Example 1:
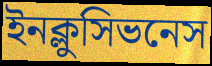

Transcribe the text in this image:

ইনক্লুসিভনেস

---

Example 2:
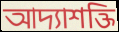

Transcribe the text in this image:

আদ্যাশক্তি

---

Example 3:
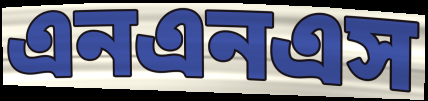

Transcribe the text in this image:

এনএনএস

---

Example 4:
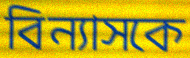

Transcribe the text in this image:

বিন্যাসকে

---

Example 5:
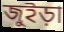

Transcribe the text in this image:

জুইড়া